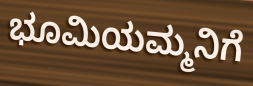
ಭೂಮಿಯಮ್ಮನಿಗೆ